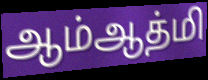
ஆம்ஆத்மி